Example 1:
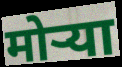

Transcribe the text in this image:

मोऱ्या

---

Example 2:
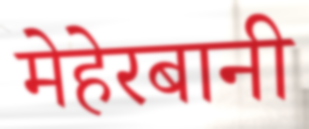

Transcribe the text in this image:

मेहेरबानी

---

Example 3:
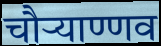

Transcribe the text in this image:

चौऱ्याण्णव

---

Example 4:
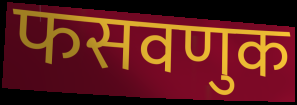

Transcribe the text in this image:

फसवणुक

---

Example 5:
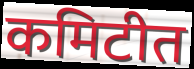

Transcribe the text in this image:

कमिटीत